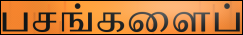
பசங்களைப்